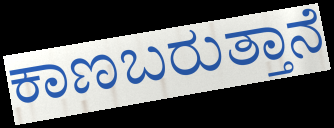
ಕಾಣಬರುತ್ತಾನೆ